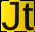
Jt